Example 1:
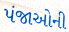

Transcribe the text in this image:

પંજાઓની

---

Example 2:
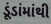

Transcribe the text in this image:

ડૂંડાંમાંથી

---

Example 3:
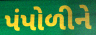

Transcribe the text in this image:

પંપોળીને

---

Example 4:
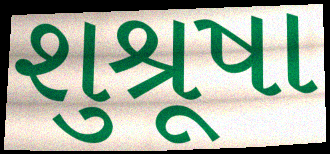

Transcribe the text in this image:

શુશ્રૂષા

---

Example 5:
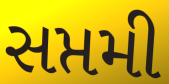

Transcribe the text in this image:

સપ્તમી